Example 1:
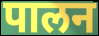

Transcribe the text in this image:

पालन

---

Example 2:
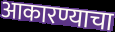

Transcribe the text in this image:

आकारण्याचा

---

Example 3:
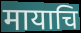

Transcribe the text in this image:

मायाचि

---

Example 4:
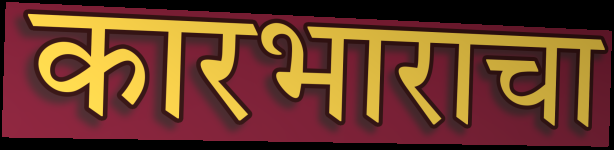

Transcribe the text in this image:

कारभाराचा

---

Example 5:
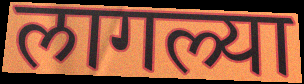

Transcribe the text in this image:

लागल्या